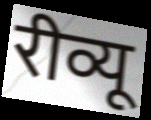
रीव्यू